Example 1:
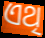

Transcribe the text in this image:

ଏଥି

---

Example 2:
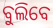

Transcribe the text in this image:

ବୁଲିବେ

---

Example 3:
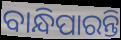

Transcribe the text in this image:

ବାନ୍ଧିପାରନ୍ତି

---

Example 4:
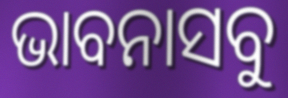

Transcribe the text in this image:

ଭାବନାସବୁ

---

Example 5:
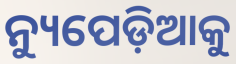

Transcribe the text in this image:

ନ୍ୟୁପେଡ଼ିଆକୁ